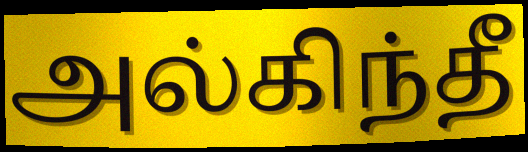
அல்கிந்தீ